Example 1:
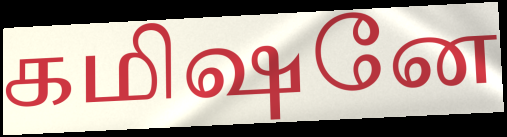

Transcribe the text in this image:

கமிஷனே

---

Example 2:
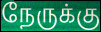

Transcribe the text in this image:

நேருக்கு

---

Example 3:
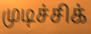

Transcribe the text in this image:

முடிச்சிக்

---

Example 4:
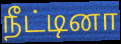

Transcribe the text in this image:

நீட்டினா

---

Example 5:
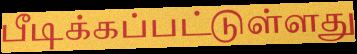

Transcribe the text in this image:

பீடிக்கப்பட்டுள்ளது